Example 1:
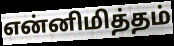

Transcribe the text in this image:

என்னிமித்தம்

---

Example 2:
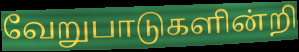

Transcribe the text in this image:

வேறுபாடுகளின்றி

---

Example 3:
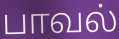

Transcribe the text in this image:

பாவல்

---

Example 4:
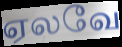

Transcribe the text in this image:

ஏலவே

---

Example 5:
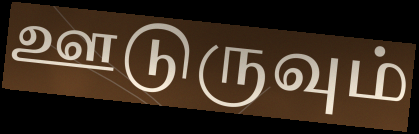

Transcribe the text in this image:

ஊடுருவும்